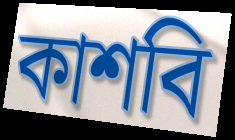
কাশবি